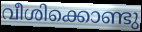
വീശിക്കൊണ്ടു